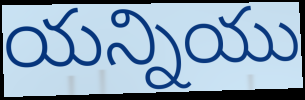
యన్నియు